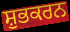
ਸ਼ੁਭਕਰਨ